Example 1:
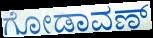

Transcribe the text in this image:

ಗೋಡಾವಣ್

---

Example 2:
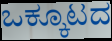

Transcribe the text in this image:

ಒಕ್ಕೂಟದ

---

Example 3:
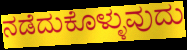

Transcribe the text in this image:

ನಡೆದುಕೊಳ್ಳುವುದು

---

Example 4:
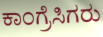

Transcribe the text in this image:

ಕಾಂಗ್ರೆಸಿಗರು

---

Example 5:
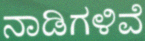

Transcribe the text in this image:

ನಾಡಿಗಳಿವೆ